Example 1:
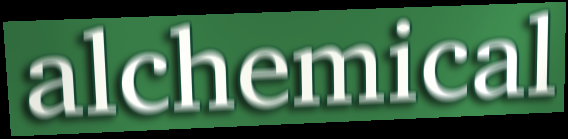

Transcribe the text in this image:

alchemical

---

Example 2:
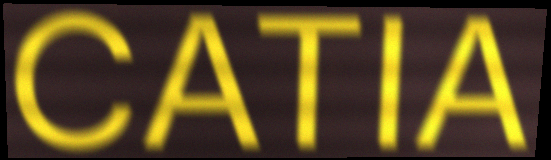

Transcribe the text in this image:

CATIA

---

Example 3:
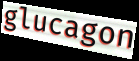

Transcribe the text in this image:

glucagon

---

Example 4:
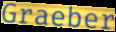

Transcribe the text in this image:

Graeber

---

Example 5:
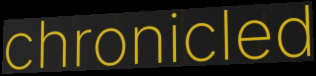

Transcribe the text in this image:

chronicled